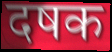
दषक